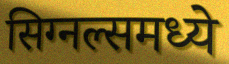
सिग्नल्समध्ये